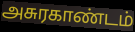
அசுரகாண்டம்